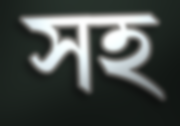
সহ